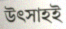
উৎসাহই